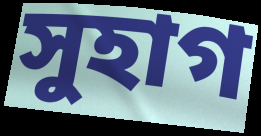
সুহাগ